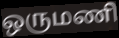
ஒருமணி